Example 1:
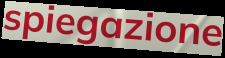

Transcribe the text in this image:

spiegazione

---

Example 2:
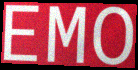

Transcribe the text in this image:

EMO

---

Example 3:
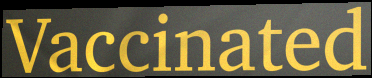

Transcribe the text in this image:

Vaccinated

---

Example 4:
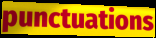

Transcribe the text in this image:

punctuations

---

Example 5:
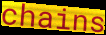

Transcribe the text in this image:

chains